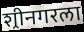
श्रीनगरला